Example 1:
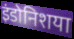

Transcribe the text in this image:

इंडोनिशया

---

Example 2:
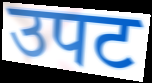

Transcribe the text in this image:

उपट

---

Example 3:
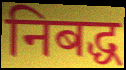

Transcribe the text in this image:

निबद्ध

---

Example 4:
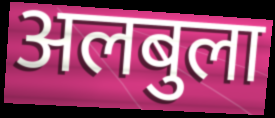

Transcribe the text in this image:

अलबुला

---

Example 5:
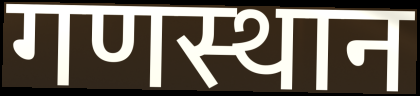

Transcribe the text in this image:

गणस्थान